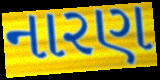
નારણ